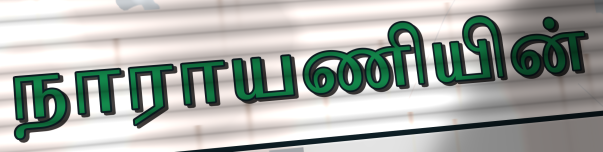
நாராயணியின்